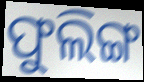
ଫୁଲିଙ୍ଗ